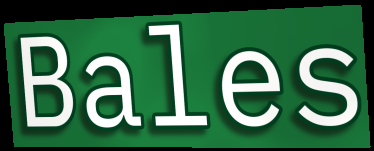
Bales